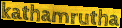
kathamrutha